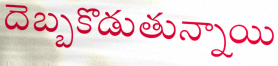
దెబ్బకొడుతున్నాయి